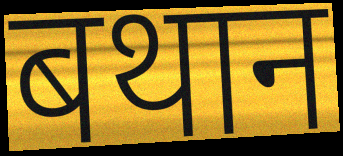
बथान